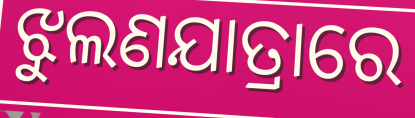
ଝୁଲଣଯାତ୍ରାରେ